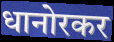
धानोरकर